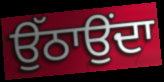
ਉੱਠਾਉਂਦਾ